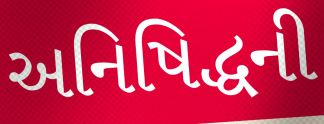
અનિષિદ્ધની